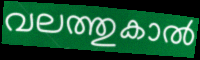
വലത്തുകാൽ